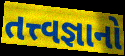
તત્ત્વજ્ઞાનો